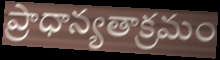
ప్రాధాన్యతాక్రమం